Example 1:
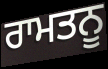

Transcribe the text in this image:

ਰਾਮਤਨੂ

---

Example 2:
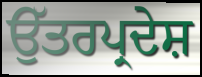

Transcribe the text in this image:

ਉੱਤਰਪ੍ਰਦੇਸ਼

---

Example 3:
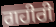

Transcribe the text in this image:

ਗਹੀਰੀ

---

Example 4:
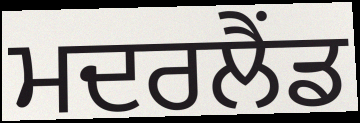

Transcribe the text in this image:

ਮਦਰਲੈਂਡ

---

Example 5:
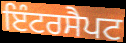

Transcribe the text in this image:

ਇੰਟਰਸੈਪਟ